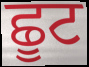
ਛੂਟ